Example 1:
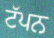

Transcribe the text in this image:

ਟੱਪਨ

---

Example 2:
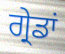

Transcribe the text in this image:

ਗ੍ਰੇਡਾਂ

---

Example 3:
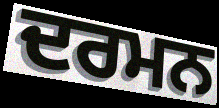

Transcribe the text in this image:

ਦਰਮਨ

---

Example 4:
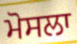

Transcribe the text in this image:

ਮੋਸਲਾ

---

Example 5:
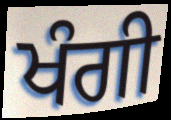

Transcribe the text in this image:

ਖੰਗੀ